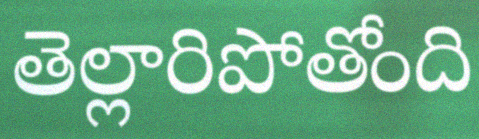
తెల్లారిపోతోంది